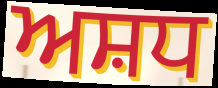
ਅਸ਼ਧ